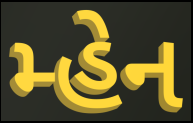
મ્હેન